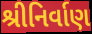
શ્રીનિર્વાણ